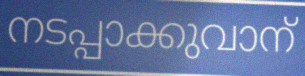
നടപ്പാക്കുവാന്